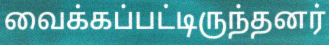
வைக்கப்பட்டிருந்தனர்